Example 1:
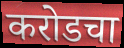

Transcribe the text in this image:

करोडचा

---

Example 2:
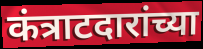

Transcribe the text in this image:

कंत्राटदारांच्या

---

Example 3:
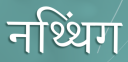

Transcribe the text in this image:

नथ्थिंग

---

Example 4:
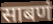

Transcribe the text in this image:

साबणं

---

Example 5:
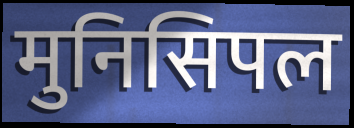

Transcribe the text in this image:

मुनिसिपल